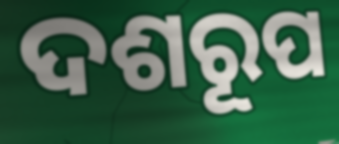
ଦଶରୂପ